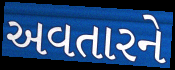
અવતારને